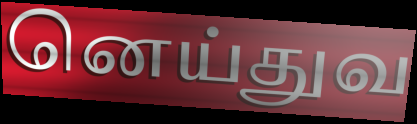
னெய்துவ